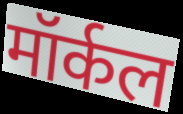
मॉर्कल